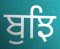
ਬੁਝਿ